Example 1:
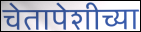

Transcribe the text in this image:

चेतापेशीच्या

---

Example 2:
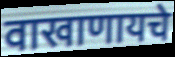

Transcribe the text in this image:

वाखाणायचे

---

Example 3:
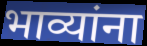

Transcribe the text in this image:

भाव्यांना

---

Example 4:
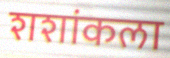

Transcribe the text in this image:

शशांकला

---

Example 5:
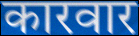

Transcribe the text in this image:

कारवार